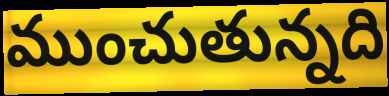
ముంచుతున్నది